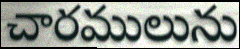
చారములును